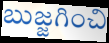
బుజ్జగించి